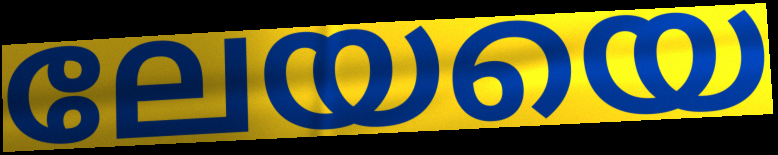
ലേയയെ